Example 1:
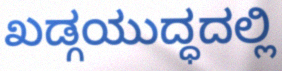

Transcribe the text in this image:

ಖಡ್ಗಯುದ್ಧದಲ್ಲಿ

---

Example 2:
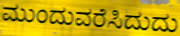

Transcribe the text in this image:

ಮುಂದುವರೆಸಿದುದು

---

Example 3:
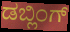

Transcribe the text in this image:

ಡಬ್ಲಿಂಗ್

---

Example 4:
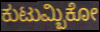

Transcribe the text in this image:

ಕುಟುಮ್ಬಿಕೋ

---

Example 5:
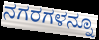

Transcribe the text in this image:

ನಗರಗಳನ್ನೂ